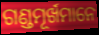
ଗଣ୍ଡମୂର୍ଖମାନେ